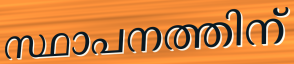
സ്ഥാപനത്തിന്